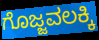
ಗೊಜ್ಜವಲಕ್ಕಿ